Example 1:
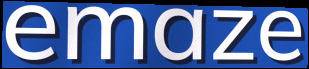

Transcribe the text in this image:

emaze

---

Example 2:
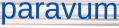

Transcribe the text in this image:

paravum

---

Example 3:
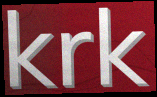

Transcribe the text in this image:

krk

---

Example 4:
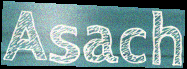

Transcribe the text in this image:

Asach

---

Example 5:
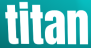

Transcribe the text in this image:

titan